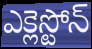
ఎక్లెస్టోన్